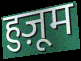
हुज़ूम